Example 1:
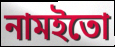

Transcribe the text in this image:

নামইতো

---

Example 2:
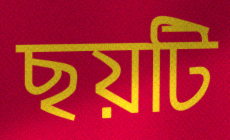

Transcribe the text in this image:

ছয়টি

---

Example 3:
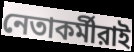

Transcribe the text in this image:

নেতাকর্মীরাই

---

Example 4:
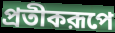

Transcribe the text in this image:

প্রতীকরূপে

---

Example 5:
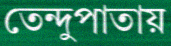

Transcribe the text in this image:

তেন্দুপাতায়